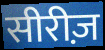
सीरीज़